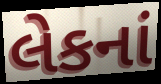
લેકનાં